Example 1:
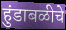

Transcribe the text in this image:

हुंडाबळीचे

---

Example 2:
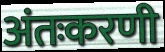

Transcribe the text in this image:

अंतःकरणी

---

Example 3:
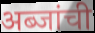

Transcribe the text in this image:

अब्जांची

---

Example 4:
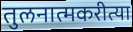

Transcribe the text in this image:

तुलनात्मकरीत्या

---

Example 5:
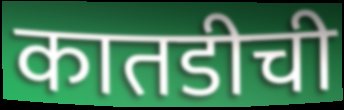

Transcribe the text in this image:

कातडीची